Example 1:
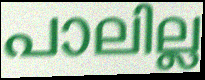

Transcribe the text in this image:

പാലില്ല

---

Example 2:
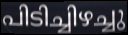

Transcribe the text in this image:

പിടിച്ചിഴച്ചു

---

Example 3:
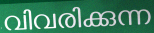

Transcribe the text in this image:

വിവരിക്കുന്ന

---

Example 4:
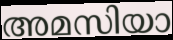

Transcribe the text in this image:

അമസിയാ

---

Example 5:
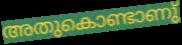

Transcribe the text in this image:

അതുകൊണ്ടാണു്